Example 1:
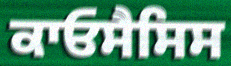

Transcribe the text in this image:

ਕਾਓਸੈਸਿਸ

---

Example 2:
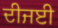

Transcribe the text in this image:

ਦੀਜਈ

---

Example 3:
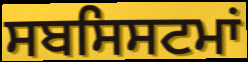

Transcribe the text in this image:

ਸਬਸਿਸਟਮਾਂ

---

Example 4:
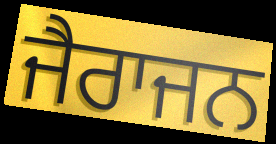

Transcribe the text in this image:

ਜੈਰਾਜਨ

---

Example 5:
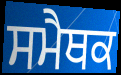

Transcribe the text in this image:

ਸਮੈਥਕ